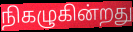
நிகழுகின்றது